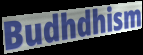
Budhdhism